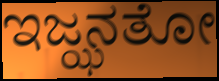
ಇಜ್ಝನತೋ